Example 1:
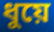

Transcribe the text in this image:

ধুয়ে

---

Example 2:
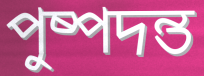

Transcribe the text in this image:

পুষ্পদন্ত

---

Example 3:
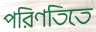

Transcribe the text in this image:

পরিণতিতে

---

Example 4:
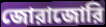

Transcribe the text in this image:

জোরাজোরি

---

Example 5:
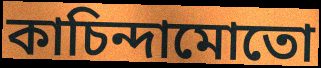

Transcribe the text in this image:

কাচিন্দামোতো